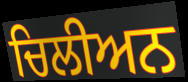
ਚਿਲੀਅਨ